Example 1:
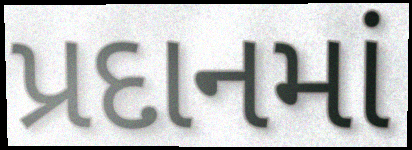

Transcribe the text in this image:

પ્રદાનમાં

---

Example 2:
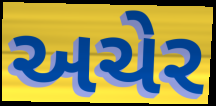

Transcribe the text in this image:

અચેર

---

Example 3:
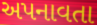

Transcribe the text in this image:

અપનાવતા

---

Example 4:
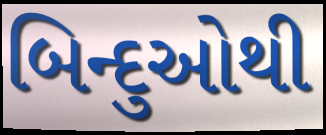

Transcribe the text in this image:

બિન્દુઓથી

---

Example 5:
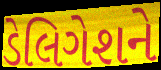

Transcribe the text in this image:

ડેલિગેશને